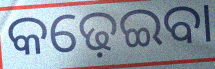
କଢ଼େଇବା